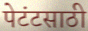
पेटंटसाठी